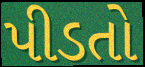
પીડતો